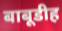
बाबूडीह